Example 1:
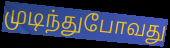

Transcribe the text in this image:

முடிந்துபோவது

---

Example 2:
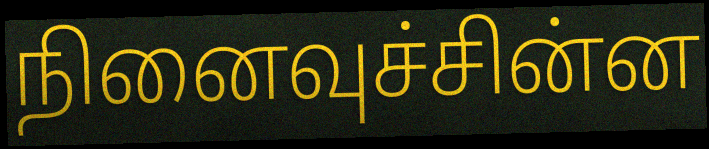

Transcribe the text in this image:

நினைவுச்சின்ன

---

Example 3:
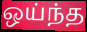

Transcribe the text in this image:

ஒய்ந்த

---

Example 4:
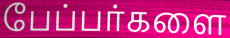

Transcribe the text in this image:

பேப்பர்களை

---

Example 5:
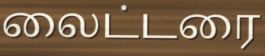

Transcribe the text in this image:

லைட்டரை